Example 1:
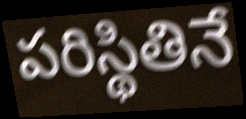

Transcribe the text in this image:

పరిస్థితినే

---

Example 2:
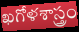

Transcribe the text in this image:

ఖగోళశాస్త్రం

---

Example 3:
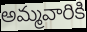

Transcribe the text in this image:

అమ్మవారికి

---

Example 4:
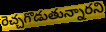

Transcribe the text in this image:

రెచ్చగొడుతున్నారని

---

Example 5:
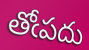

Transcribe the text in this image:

తోఁపదు